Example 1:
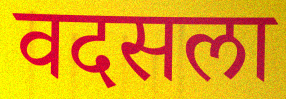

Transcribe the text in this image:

वदसला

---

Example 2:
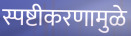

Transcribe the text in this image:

स्पष्टीकरणामुळे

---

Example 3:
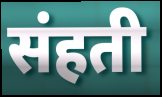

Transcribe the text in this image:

संहती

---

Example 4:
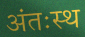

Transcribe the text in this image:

अंतःस्थ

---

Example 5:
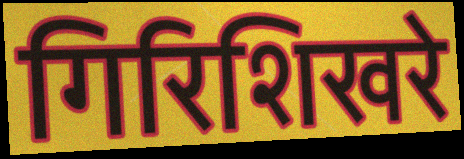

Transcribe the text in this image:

गिरिशिखरे